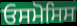
ਓਸਮੋਸਿਸ